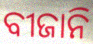
ବୀଜାନି